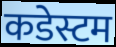
कडेस्टम